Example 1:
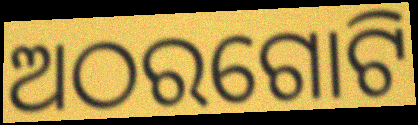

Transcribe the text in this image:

ଅଠରଗୋଟି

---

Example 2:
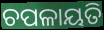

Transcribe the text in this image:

ଚପଳାୟତି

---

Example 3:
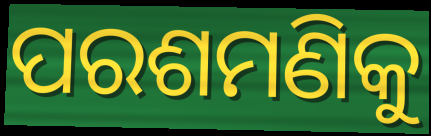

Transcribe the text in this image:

ପରଶମଣିକୁ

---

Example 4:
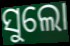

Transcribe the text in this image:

ସୁଲୋ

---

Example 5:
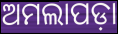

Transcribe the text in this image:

ଅମଲାପଡ଼ା